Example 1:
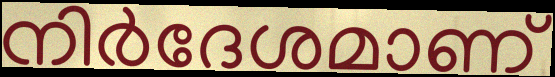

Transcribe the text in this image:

നിർദേശമാണ്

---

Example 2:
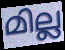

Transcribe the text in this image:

മില്ല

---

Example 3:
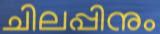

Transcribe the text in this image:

ചിലപ്പിനും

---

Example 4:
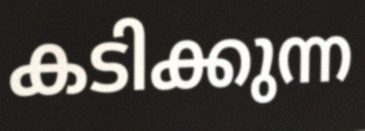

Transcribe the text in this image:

കടിക്കുന്ന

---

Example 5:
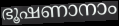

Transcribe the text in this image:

ഭൂഷണാനാം